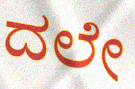
ದಲೇ